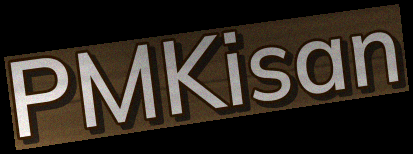
PMKisan